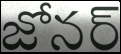
జోనర్